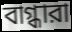
বাগ্ধারা